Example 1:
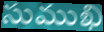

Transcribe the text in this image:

సుముఖి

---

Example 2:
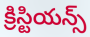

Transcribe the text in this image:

క్రిస్టియన్స్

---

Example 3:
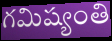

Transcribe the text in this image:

గమిష్యంతి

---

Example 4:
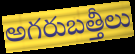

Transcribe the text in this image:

అగరుబత్తీలు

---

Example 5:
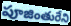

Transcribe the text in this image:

పూజింతురేని